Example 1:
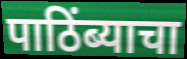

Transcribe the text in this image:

पाठिंब्याचा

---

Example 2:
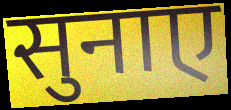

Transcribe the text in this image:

सुनाए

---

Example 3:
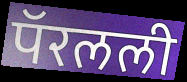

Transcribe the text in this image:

पॅरलली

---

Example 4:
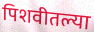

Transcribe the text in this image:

पिशवीतल्या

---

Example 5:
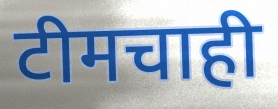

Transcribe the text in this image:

टीमचाही